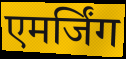
एमर्जिंग